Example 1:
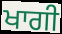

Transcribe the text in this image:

ਖਾਗੀ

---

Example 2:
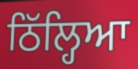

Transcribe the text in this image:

ਠਿੱਲ੍ਹਿਆ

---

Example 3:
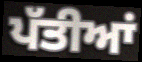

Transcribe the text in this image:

ਪੱਤੀਆਂ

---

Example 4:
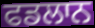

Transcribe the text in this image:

ਫਡਲਾਨ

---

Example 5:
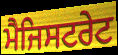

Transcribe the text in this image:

ਮੈਜਿਸਟਰੇਟ